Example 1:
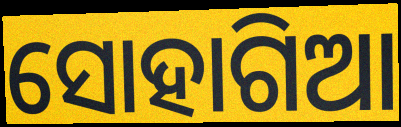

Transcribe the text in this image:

ସୋହାଗିଆ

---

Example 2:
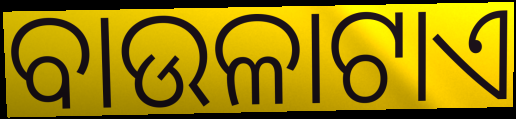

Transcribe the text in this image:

ବାଉଳାଟାଏ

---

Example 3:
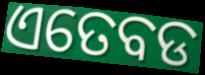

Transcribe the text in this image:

ଏତେବଡ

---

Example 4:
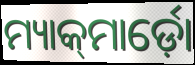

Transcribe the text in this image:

ମ୍ୟାକ୍‍ମାର୍ଡ଼ୋ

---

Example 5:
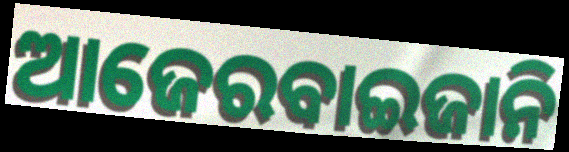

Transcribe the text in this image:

ଆଜେରବାଇଜାନି